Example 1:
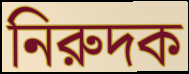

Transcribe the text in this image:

নিরুদক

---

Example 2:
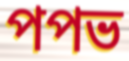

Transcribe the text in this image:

পপভ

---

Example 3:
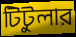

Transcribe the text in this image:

টিটুলার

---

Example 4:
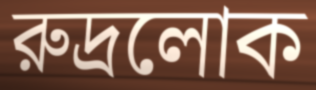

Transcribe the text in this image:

রুদ্রলোক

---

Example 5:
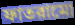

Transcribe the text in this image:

ফাতরামো